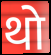
थो